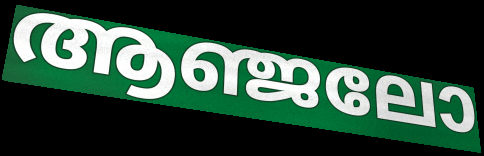
ആഞ്ജലോ